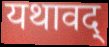
यथावद्